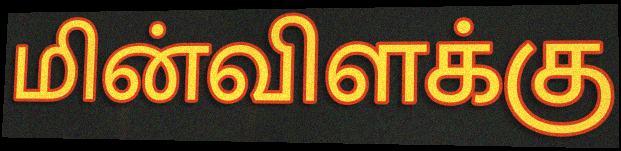
மின்விளக்கு